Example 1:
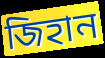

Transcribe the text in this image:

জিহান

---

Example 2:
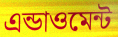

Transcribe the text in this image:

এন্ডাওমেন্ট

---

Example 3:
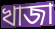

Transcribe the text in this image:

খাজা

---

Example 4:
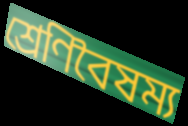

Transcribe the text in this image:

শ্রেণিবৈষম্য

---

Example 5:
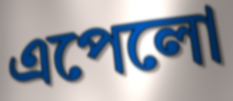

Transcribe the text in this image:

এপেলো